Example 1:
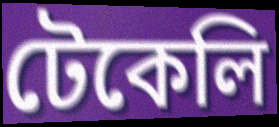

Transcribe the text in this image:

টেকেলি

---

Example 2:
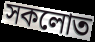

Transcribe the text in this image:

সকলোত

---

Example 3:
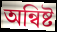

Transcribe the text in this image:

অন্বিষ্ট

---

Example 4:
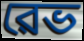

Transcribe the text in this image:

ৱেভ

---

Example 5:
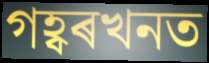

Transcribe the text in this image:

গহ্বৰখনত